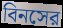
বিনসের